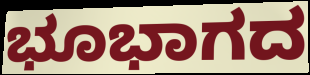
ಭೂಭಾಗದ